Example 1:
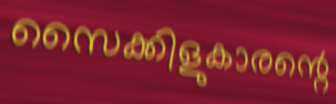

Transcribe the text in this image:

സൈക്കിളുകാരന്റെ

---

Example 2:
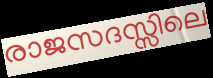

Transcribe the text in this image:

രാജസദസ്സിലെ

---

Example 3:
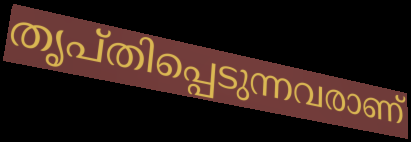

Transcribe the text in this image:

തൃപ്തിപ്പെടുന്നവരാണ്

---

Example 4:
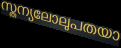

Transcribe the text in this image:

സ്തന്യലോലുപതയാ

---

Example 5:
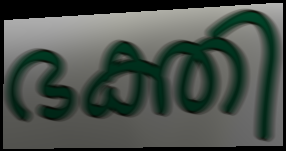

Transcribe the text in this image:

ഭക്തി